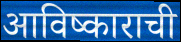
आविष्काराची